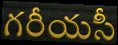
గరీయసీ